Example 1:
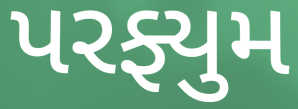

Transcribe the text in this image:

પરફ્યુમ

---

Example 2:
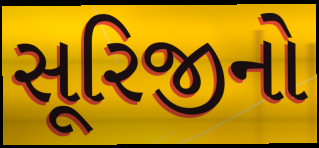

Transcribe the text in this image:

સૂરિજીનો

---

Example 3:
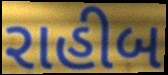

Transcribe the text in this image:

રાહીબ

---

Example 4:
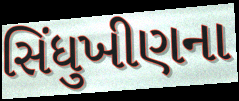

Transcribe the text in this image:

સિંધુખીણના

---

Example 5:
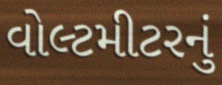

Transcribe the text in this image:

વોલ્ટમીટરનું